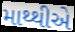
માથ્થીએ